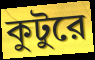
কুটুরে